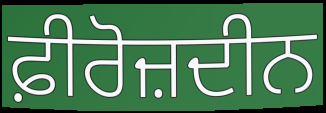
ਫ਼ੀਰੋਜ਼ਦੀਨ